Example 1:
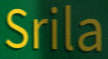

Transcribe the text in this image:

Srila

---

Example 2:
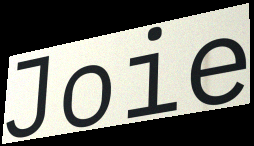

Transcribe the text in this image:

Joie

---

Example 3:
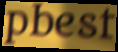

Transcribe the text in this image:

pbest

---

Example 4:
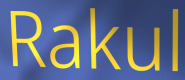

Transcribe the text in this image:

Rakul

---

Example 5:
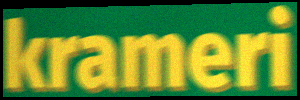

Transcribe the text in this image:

krameri